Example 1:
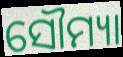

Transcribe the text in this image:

ସୌମ୍ୟା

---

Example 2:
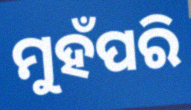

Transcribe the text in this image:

ମୁହଁପରି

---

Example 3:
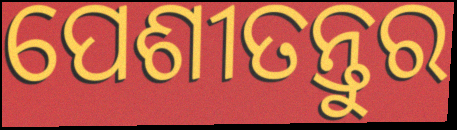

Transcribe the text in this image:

ପେଶୀତନ୍ତୁର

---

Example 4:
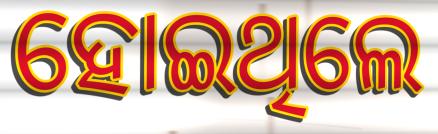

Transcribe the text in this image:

ହୋଇଥିଲେ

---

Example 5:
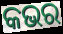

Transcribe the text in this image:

କଭର